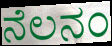
ನೆಲನಂ